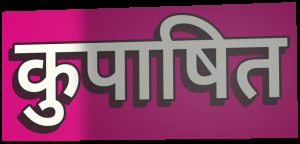
कुपाषित